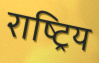
राष्ट्रिय